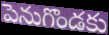
పెనుగొండకు